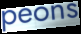
peons